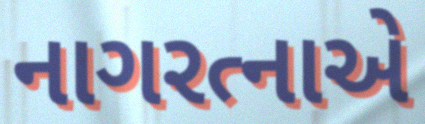
નાગરત્નાએ